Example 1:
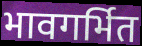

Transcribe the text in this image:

भावगर्भित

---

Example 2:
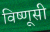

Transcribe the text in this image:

विष्णूसी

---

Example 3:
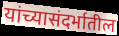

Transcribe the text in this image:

यांच्यासंदर्भातील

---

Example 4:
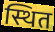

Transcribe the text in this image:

स्थित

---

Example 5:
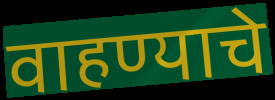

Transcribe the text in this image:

वाहण्याचे